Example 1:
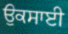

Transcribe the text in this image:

ਉਕਸਾਈ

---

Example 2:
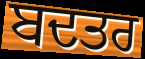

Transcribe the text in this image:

ਬਦਤਰ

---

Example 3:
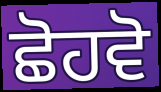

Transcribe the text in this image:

ਛੋਹਵੋ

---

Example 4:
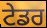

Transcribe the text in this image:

ਟੇਡਰ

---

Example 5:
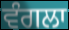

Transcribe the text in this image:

ਵੰਗਲਾ